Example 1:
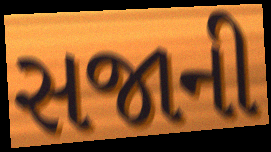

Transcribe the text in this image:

સજાની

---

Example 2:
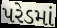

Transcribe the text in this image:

પરેડમાં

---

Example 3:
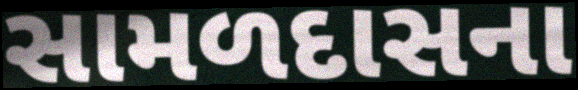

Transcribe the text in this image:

સામળદાસના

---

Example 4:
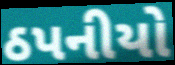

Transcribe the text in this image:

ઠપનીયો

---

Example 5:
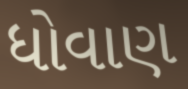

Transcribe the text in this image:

ધોવાણ